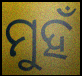
ମୁହଁ